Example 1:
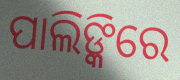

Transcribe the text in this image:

ପାଲିଙ୍କିରେ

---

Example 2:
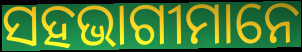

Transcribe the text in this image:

ସହଭାଗୀମାନେ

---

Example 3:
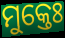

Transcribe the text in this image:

ମୁକ୍ତେଃ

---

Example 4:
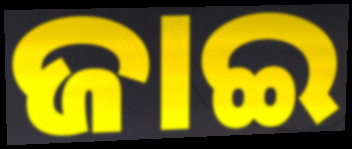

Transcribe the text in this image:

ଜାଇ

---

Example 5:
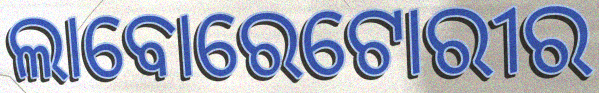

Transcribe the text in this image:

ଲାବୋରେଟୋରୀର